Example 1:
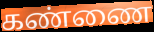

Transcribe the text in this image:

கண்ணை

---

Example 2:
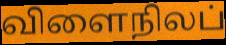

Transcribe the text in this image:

விளைநிலப்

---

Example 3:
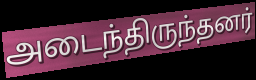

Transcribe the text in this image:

அடைந்திருந்தனர்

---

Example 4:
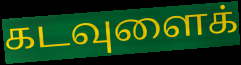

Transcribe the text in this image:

கடவுளைக்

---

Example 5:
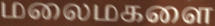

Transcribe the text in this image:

மலைமகளை